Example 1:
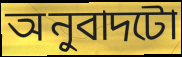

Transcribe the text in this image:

অনুবাদটো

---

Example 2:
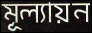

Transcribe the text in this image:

মূল্যায়ন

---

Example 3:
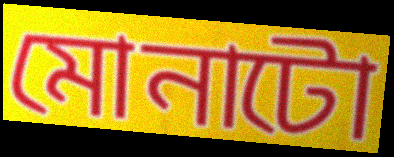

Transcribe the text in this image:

মোনাটো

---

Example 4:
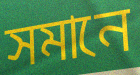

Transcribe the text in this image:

সমানে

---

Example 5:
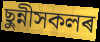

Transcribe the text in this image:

ছুন্নীসকলৰ